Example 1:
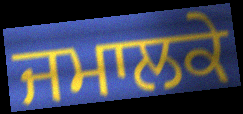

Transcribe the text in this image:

ਜਮਾਲਕੇ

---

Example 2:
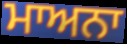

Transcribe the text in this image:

ਮਾਅਨਾ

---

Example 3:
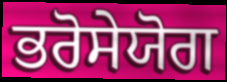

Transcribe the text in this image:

ਭਰੋਸੇਯੋਗ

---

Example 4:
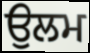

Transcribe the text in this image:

ਉਲਮ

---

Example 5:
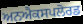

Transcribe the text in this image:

ਅਨਐਕਸਪਲੋਰਡ